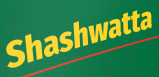
Shashwatta